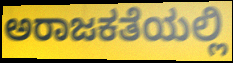
ಅರಾಜಕತೆಯಲ್ಲಿ